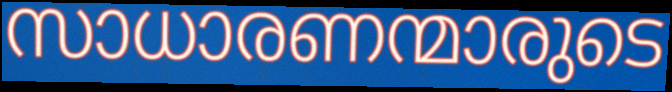
സാധാരണന്മാരുടെ